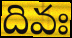
దివః